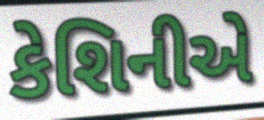
કેશિનીએ